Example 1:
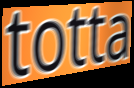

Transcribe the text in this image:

totta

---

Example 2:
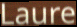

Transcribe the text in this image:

Laure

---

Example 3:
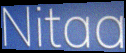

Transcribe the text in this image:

Nitaa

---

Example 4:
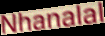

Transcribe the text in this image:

Nhanalal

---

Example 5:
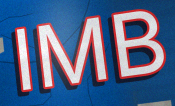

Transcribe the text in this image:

IMB